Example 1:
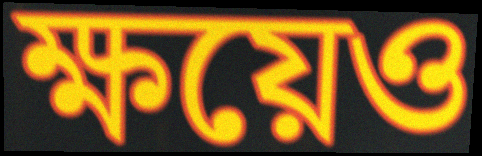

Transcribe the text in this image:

ক্ষয়েও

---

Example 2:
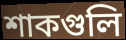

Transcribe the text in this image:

শাকগুলি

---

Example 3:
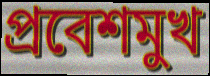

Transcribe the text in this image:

প্রবেশমুখ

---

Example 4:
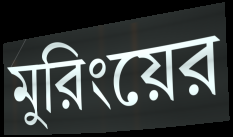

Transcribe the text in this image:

মুরিংয়ের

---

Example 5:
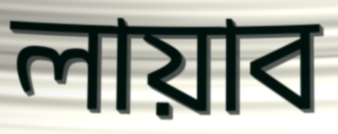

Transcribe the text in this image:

লায়াব